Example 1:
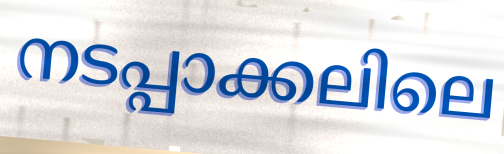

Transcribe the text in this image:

നടപ്പാക്കലിലെ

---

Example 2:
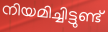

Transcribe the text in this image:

നിയമിച്ചിട്ടുണ്ട്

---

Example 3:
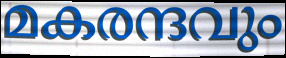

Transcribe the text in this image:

മകരന്ദവും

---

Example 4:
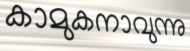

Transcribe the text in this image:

കാമുകനാവുന്നു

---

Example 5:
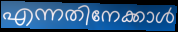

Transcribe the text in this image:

എന്നതിനേക്കാൾ